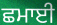
ਛਮਾਈ